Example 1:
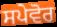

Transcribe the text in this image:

ਸਪੇਵੋਰ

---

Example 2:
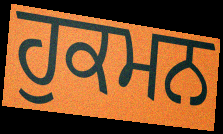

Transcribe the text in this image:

ਹੁਕਮਨ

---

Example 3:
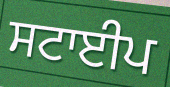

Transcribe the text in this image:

ਸਟਾਈਪ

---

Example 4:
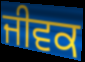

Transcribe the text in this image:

ਜੀਵਕ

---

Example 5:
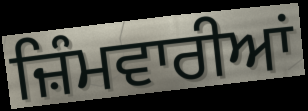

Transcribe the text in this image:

ਜ਼ਿੰਮਵਾਰੀਆਂ